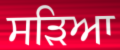
ਸੜਿਆ